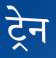
ट्रेन